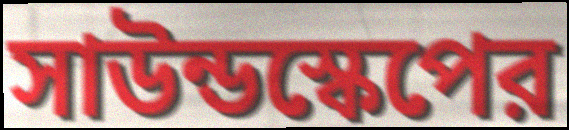
সাউন্ডস্কেপের